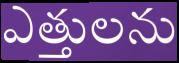
ఎత్తులను